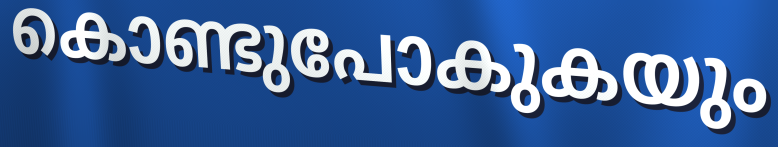
കൊണ്ടുപോകുകയും